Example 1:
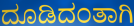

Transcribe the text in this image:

ದೂಡಿದಂತಾಗಿ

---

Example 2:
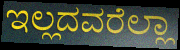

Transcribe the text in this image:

ಇಲ್ಲದವರೆಲ್ಲಾ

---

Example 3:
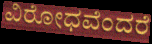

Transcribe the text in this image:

ವಿರೋಧವೆಂದರೆ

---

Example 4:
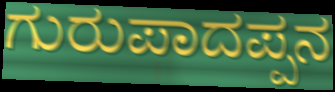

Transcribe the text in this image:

ಗುರುಪಾದಪ್ಪನ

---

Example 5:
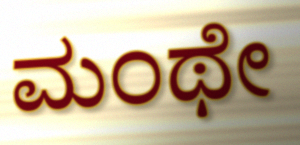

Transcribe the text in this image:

ಮಂಥೇ